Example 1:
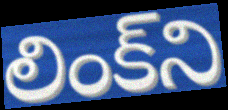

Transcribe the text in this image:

లింక్‌ని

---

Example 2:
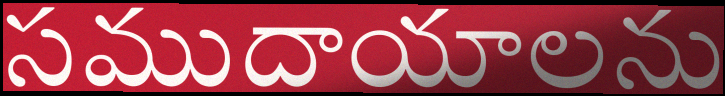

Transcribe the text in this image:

సముదాయాలను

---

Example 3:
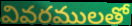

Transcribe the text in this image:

వివరములతో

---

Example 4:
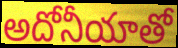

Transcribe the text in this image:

అదోనీయాతో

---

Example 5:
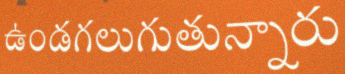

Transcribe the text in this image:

ఉండగలుగుతున్నారు